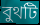
বুথটি